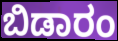
ಬಿಡಾರಂ